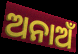
ଅନାଅଁ